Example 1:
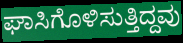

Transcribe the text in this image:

ಘಾಸಿಗೊಳಿಸುತ್ತಿದ್ದವು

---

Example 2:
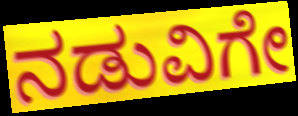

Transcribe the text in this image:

ನಡುವಿಗೇ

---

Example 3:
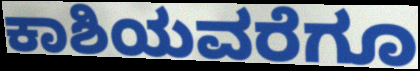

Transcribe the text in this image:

ಕಾಶಿಯವರೆಗೂ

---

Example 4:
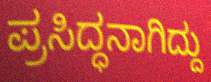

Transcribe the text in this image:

ಪ್ರಸಿದ್ಧನಾಗಿದ್ದು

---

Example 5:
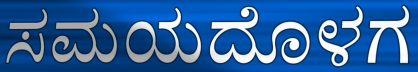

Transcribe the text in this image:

ಸಮಯದೊಳಗ